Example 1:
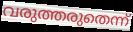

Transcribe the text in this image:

വരുത്തരുതെന്ന്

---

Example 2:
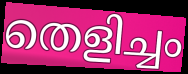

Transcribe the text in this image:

തെളിച്ചം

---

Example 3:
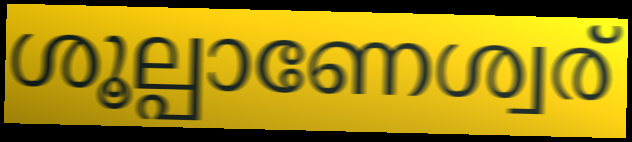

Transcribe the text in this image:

ശൂല്പാണേശ്വര്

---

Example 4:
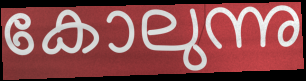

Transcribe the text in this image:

കോലുന്നു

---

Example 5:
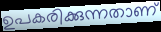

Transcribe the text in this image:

ഉപകരിക്കുന്നതാണ്